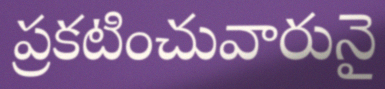
ప్రకటించువారునై